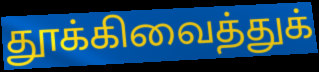
தூக்கிவைத்துக்